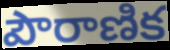
పౌరాణిక